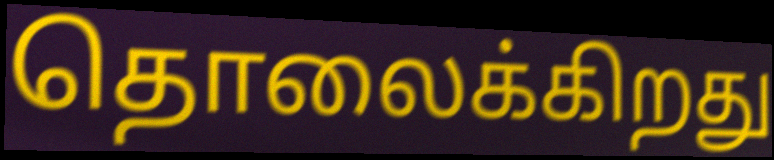
தொலைக்கிறது